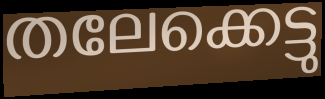
തലേക്കെട്ടു